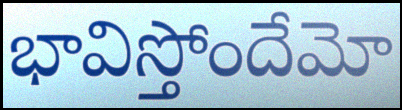
భావిస్తోందేమో